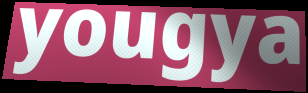
yougya